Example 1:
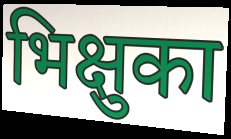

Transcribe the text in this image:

भिक्षुका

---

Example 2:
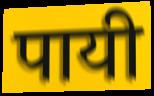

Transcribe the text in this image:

पायी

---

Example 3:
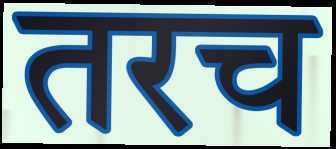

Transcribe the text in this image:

तरच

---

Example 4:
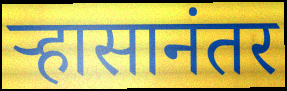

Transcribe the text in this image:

ऱ्हासानंतर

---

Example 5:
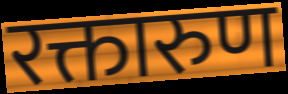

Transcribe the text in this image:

रक्तारुण